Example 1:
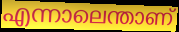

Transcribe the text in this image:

എന്നാലെന്താണ്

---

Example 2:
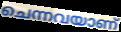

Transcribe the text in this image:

ചെന്നവയാണ്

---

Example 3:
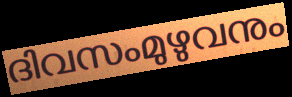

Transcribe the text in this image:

ദിവസംമുഴുവനും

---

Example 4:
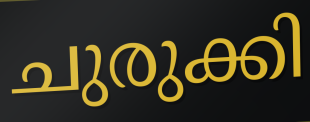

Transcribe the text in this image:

ചുരുക്കി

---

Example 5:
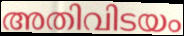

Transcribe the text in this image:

അതിവിടയം